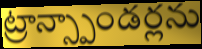
ట్రాన్స్పాండర్లను